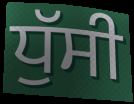
ਧੁੱਸੀ